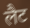
लैट